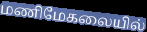
மணிமேகலையில்